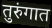
तुरुंगात